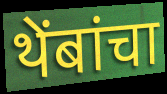
थेंबांचा